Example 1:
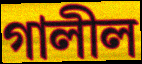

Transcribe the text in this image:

গালীল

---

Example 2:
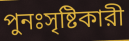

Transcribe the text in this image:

পুনঃসৃষ্টিকারী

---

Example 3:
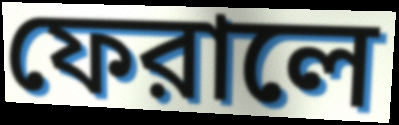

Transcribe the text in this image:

ফেরালে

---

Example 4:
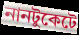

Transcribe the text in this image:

নানটুকেটে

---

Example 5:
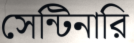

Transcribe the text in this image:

সেন্টিনারি